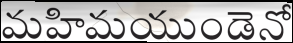
మహిమయుండెనో